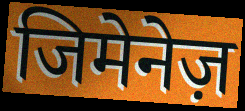
जिमेनेज़